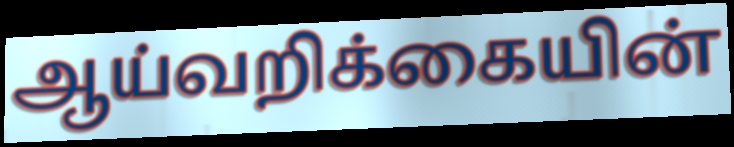
ஆய்வறிக்கையின்